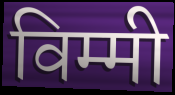
विम्मी